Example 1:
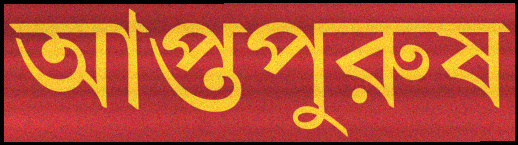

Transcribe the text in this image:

আপ্তপুরুষ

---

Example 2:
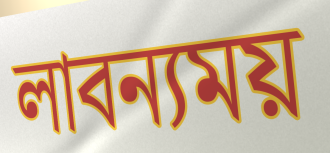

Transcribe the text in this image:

লাবন্যময়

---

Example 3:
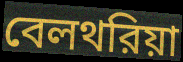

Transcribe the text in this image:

বেলথরিয়া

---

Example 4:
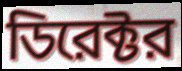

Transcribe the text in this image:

ডিরেক্টর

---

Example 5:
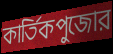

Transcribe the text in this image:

কার্তিকপুজোর